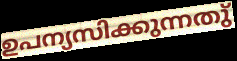
ഉപന്യസിക്കുന്നതു്